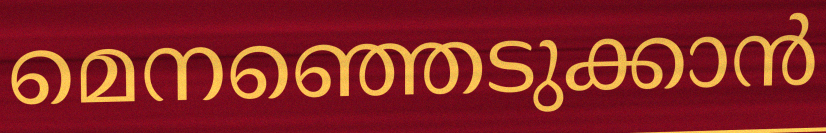
മെനഞ്ഞെടുക്കാൻ